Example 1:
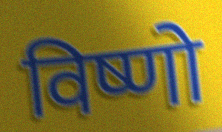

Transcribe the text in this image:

विष्णो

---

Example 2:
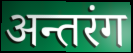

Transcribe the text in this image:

अन्तरंग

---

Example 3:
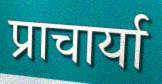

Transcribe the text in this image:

प्राचार्या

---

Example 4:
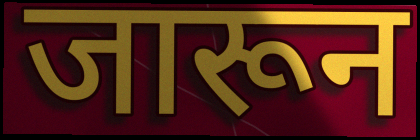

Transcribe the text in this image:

जारून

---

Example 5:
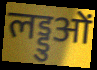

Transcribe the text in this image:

लड्डुओं